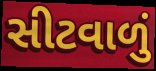
સીટવાળું